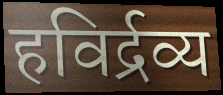
हविर्द्रव्य